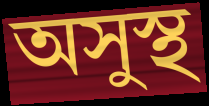
অসুস্থ